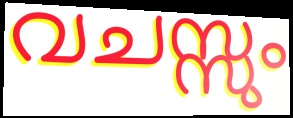
വചസ്സും